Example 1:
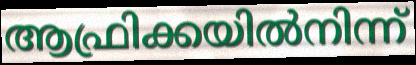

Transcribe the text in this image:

ആഫ്രിക്കയിൽനിന്ന്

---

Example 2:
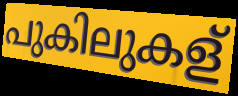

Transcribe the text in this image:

പുകിലുകള്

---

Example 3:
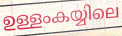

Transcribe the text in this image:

ഉള്ളംകയ്യിലെ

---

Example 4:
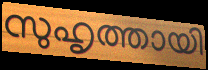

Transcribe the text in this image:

സുഹൃത്തായി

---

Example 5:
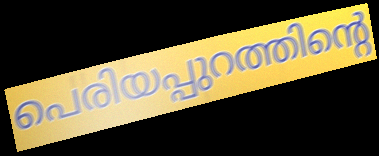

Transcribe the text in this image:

പെരിയപ്പുറത്തിന്റെ